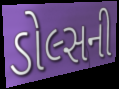
ડોલ્સની